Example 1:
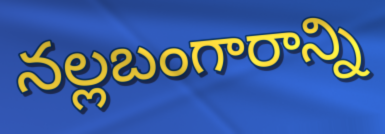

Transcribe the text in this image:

నల్లబంగారాన్ని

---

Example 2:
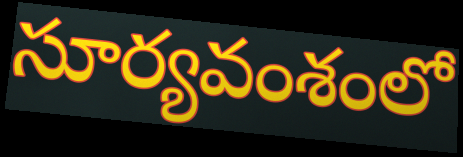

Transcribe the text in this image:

సూర్యవంశంలో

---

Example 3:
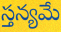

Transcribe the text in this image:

స్తన్యమే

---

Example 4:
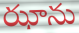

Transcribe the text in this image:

ఝాను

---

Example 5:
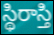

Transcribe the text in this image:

స్థిరాస్తి